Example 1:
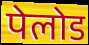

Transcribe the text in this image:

पेलोड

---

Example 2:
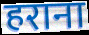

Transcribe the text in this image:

हराना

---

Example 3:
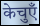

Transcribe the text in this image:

केचुएँ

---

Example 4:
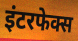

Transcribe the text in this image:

इंटरफेक्स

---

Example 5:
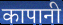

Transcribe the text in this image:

कापानी